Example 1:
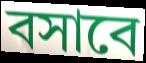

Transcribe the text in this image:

বসাবে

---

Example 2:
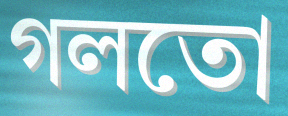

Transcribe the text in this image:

গলতো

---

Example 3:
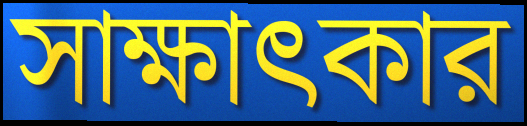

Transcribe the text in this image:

সাক্ষাৎকার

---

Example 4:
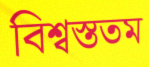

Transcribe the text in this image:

বিশ্বস্ততম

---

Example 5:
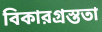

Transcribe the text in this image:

বিকারগ্রস্ততা